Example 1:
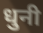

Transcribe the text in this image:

धुनी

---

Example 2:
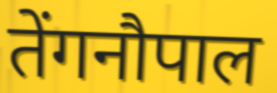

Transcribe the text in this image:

तेंगनौपाल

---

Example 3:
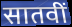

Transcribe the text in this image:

सातवीं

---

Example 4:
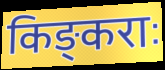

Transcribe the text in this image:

किङ्कराः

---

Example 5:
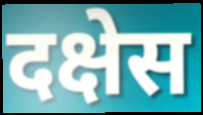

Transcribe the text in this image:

दक्षेस